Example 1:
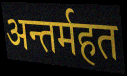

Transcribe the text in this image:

अन्तर्महत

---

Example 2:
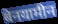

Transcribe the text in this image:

बेनयामीन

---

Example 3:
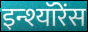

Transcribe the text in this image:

इन्श्यॉरेंस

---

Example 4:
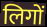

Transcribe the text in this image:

लिगों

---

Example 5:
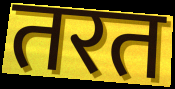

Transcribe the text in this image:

तरत